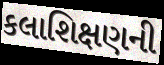
કલાશિક્ષણની